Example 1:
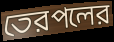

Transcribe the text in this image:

তেরপলের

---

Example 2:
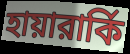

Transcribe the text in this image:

হায়ারার্কি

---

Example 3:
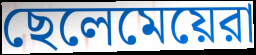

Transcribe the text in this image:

ছেলেমেয়েরা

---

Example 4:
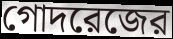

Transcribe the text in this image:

গোদরেজের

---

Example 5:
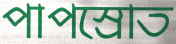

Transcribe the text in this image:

পাপস্রোত